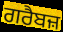
ਗਰੈਬਜ਼